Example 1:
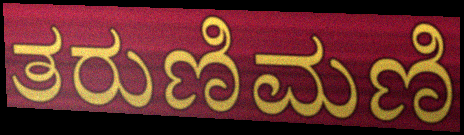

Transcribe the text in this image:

ತರುಣಿಮಣಿ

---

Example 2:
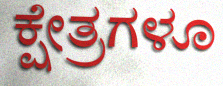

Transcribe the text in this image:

ಕ್ಷೇತ್ರಗಳೂ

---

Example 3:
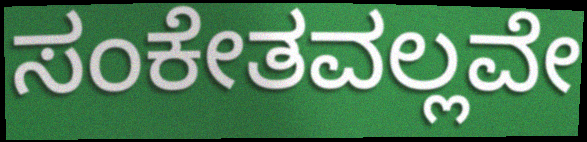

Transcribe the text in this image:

ಸಂಕೇತವಲ್ಲವೇ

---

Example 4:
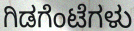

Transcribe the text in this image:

ಗಿಡಗೆಂಟೆಗಳು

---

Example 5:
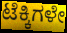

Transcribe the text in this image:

ಟೆಕ್ಕಿಗಳೇ